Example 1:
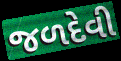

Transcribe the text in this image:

જળદેવી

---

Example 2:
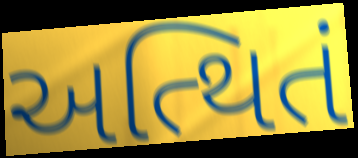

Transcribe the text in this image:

અત્થિતં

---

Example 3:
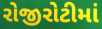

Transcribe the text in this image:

રોજીરોટીમાં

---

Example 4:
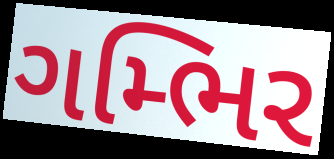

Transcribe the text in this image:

ગમ્ભિર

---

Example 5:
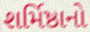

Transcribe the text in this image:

શર્મિષ્ઠાનો